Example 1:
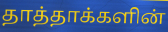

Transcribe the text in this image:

தாத்தாக்களின்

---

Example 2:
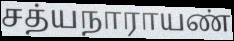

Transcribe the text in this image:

சத்யநாராயண்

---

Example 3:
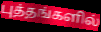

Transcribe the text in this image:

புத்தங்களில்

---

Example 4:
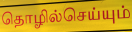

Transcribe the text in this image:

தொழில்செய்யும்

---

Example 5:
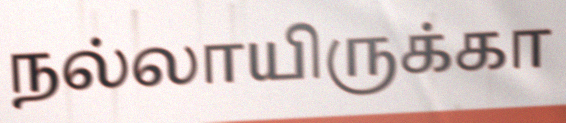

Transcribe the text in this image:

நல்லாயிருக்கா